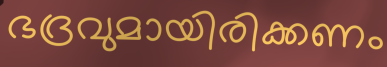
ഭദ്രവുമായിരിക്കണം